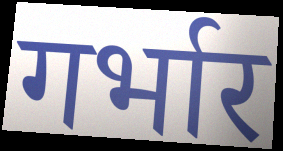
गर्भार